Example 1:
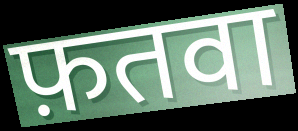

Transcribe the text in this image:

फ़तवा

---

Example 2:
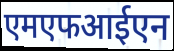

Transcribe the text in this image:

एमएफआईएन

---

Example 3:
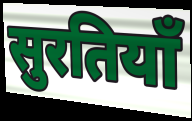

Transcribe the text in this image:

सुरतियाँ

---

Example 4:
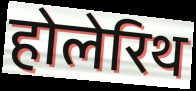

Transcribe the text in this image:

होलेरिथ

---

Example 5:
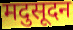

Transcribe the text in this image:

मदुसूदन